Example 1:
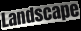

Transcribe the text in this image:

Landscape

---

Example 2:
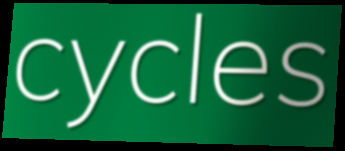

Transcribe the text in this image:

cycles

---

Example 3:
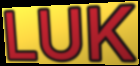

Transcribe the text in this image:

LUK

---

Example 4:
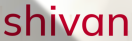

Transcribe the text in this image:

shivan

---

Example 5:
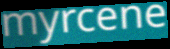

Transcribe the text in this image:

myrcene